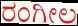
ರಂಗೀಲ